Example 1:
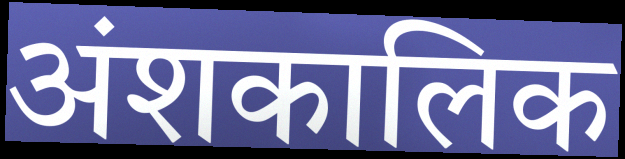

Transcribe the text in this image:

अंशकालिक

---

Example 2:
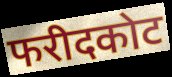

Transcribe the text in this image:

फरीदकोट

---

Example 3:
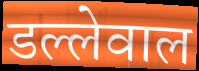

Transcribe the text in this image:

डल्लेवाल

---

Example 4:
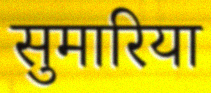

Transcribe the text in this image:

सुमारिया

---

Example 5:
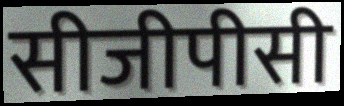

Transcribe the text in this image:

सीजीपीसी